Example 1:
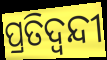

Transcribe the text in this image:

ପ୍ରତିଦ୍ଵନ୍ଦୀ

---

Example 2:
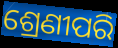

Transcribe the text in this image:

ଶ୍ରେଣୀପରି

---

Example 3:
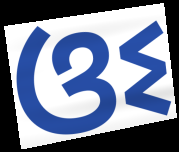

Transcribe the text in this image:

ଓଽ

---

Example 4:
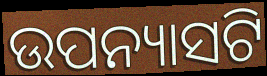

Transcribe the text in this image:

ଉପନ୍ୟାସଟି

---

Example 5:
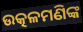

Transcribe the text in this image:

ଉତ୍କଳମଣିଙ୍କ